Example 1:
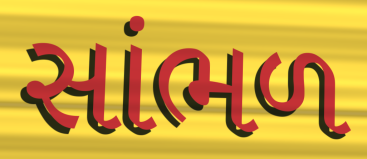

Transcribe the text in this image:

સાંભળ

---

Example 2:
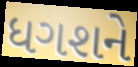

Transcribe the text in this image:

ધગશને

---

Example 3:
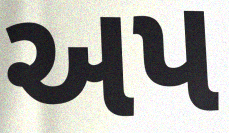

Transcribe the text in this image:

અપ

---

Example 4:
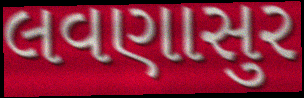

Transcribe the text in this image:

લવણાસુર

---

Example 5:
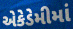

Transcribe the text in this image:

એકેડેમીમાં